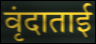
वृंदाताई